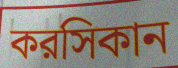
করসিকান